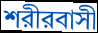
শরীরবাসী